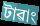
টাৱাং